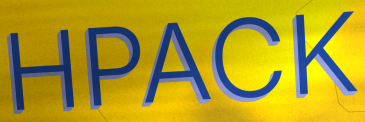
HPACK